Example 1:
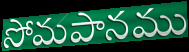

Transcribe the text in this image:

సోమపానము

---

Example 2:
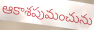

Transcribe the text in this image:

ఆకాశపుమంచును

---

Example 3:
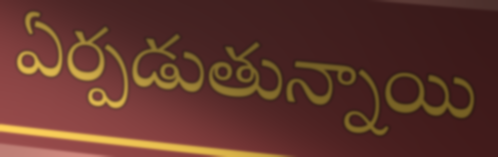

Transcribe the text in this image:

ఏర్పడుతున్నాయి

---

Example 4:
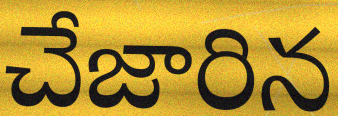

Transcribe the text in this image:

చేజారిన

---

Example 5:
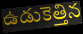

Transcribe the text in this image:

ఉడుకెత్తిన